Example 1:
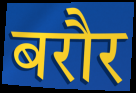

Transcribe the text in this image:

बरौर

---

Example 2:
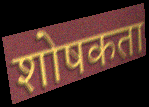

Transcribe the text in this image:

शोषकता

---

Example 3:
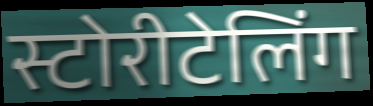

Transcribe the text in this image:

स्टोरीटेलिंग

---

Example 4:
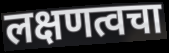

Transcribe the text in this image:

लक्षणत्वचा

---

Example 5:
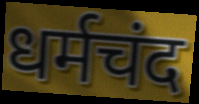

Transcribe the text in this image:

धर्मचंद